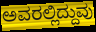
ಅವರಲ್ಲಿದ್ದುವು